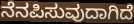
ನೆನಪಿಸುವುದಾಗಿದೆ